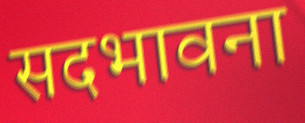
सदभावना